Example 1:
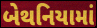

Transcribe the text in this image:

બેથનિયામાં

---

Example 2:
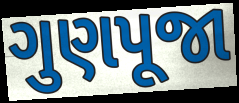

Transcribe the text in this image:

ગુણપૂજા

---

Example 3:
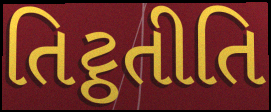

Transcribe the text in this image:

તિટ્ઠતીતિ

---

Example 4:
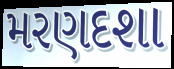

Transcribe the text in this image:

મરણદશા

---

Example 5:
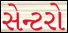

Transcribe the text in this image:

સેન્ટરો